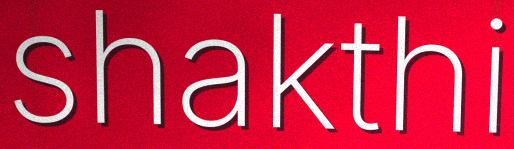
shakthi